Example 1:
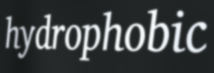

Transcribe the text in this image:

hydrophobic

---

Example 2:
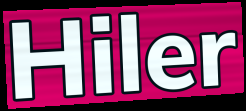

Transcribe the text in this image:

Hiler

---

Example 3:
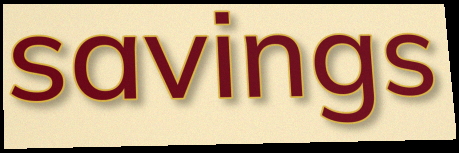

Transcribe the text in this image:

savings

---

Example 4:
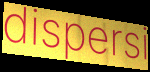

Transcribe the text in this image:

dispersi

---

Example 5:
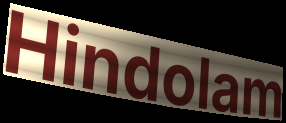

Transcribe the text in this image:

Hindolam